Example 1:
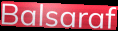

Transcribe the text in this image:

Balsaraf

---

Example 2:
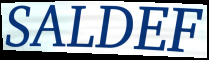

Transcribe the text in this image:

SALDEF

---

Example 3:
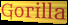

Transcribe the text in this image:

Gorilla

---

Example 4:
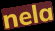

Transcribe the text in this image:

nela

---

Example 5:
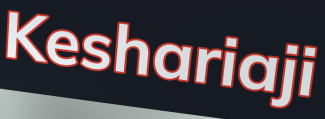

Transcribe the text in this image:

Keshariaji